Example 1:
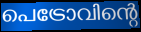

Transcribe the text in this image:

പെട്രോവിന്റെ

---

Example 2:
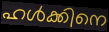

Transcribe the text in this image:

ഹൾക്കിനെ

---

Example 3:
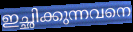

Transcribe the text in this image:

ഇച്ഛിക്കുന്നവനെ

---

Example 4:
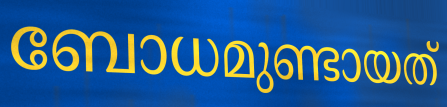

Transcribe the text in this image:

ബോധമുണ്ടായത്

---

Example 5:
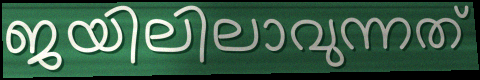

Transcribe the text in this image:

ജയിലിലാവുന്നത്